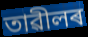
তাৱীলৰ